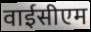
वाईसीएम